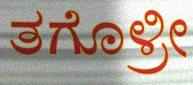
ತಗೊಳ್ರೀ